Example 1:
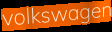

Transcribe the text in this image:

volkswagen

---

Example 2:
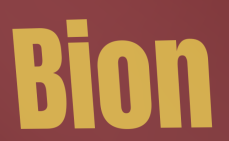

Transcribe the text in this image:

Bion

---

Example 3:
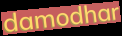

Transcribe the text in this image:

damodhar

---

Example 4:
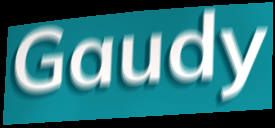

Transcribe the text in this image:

Gaudy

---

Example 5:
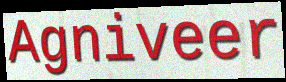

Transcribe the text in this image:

Agniveer